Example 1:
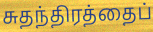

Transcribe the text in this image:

சுதந்திரத்தைப்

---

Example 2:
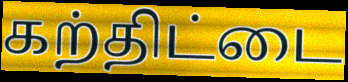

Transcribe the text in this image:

கற்திட்டை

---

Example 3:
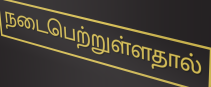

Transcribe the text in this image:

நடைபெற்றுள்ளதால்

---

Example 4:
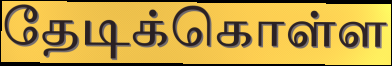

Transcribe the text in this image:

தேடிக்கொள்ள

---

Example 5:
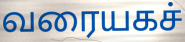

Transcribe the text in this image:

வரையகச்